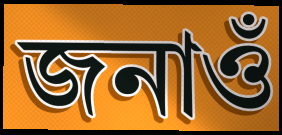
জনাওঁ